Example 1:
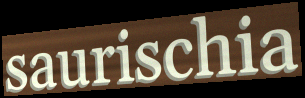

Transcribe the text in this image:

saurischia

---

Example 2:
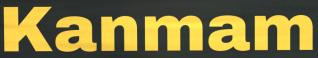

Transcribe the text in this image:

Kanmam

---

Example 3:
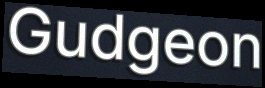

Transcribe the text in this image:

Gudgeon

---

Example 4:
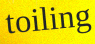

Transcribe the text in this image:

toiling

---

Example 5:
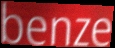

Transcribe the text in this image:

benze